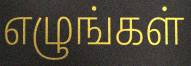
எழுங்கள்